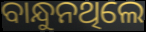
ବାନ୍ଧୁନଥିଲେ